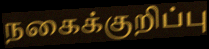
நகைக்குறிப்பு